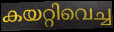
കയറ്റിവെച്ച